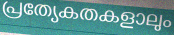
പ്രത്യേകതകളാലും